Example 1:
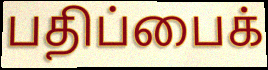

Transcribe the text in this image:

பதிப்பைக்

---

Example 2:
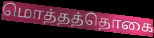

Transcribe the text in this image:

மொத்தத்தொகை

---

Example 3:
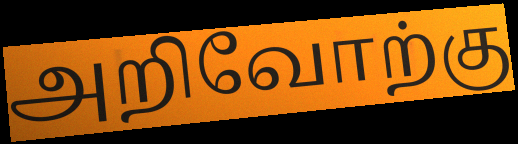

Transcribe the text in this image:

அறிவோற்கு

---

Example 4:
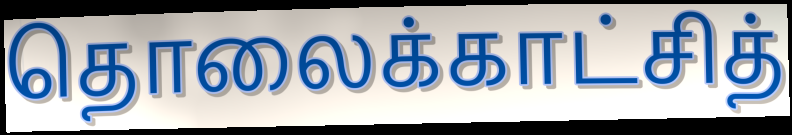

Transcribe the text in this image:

தொலைக்காட்சித்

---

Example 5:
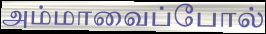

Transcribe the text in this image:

அம்மாவைப்போல்